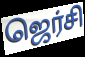
ஜெர்சி